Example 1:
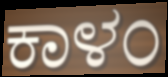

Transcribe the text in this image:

ಕಾಳಂ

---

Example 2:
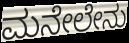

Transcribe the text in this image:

ಮನೇಲೇನು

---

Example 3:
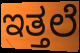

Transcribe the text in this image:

ಇತ್ತಲೆ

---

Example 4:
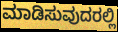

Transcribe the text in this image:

ಮಾಡಿಸುವುದರಲ್ಲಿ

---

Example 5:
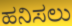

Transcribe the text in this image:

ಹನಿಸಲು